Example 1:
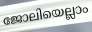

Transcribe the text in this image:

ജോലിയെല്ലാം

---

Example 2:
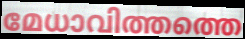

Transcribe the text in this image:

മേധാവിത്തത്തെ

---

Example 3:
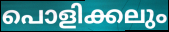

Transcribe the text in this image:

പൊളിക്കലും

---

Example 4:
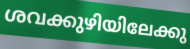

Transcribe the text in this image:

ശവക്കുഴിയിലേക്കു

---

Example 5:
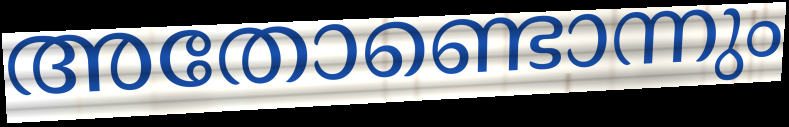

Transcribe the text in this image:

അതോണ്ടൊന്നും